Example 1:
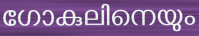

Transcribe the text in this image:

ഗോകുലിനെയും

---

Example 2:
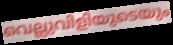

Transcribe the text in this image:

വെല്ലുവിളിയുടെയും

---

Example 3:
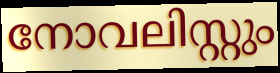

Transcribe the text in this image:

നോവലിസ്റ്റും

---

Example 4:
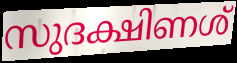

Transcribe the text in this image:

സുദക്ഷിണശ്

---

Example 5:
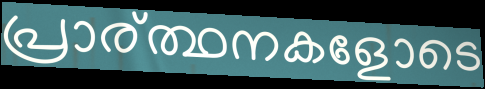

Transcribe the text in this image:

പ്രാര്ത്ഥനകളോടെ